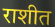
राशीत